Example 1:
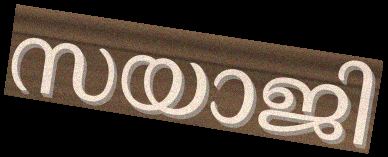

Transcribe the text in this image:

സയാജി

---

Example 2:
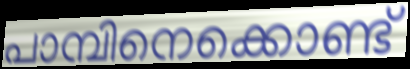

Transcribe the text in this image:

പാമ്പിനെക്കൊണ്ട്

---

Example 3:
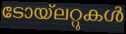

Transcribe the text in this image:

ടോയ്‌ലറ്റുകൾ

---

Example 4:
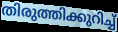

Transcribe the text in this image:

തിരുത്തിക്കുറിച്ച്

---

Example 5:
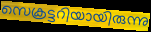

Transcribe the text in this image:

സെക്രട്ടറിയായിരുന്നു